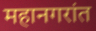
महानगरांत